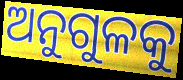
ଅନୁଗୁଳକୁ